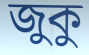
জুকু